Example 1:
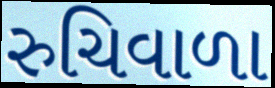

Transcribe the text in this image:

રુચિવાળા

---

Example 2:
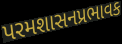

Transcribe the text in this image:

પરમશાસનપ્રભાવક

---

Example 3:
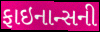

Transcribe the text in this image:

ફાઇનાન્સની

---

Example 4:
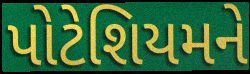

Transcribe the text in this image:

પોટેશિયમને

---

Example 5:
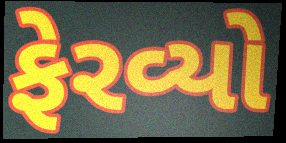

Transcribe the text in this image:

ફેરવ્યો